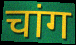
चांग